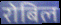
रोबिल